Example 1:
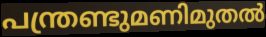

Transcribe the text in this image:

പന്ത്രണ്ടുമണിമുതൽ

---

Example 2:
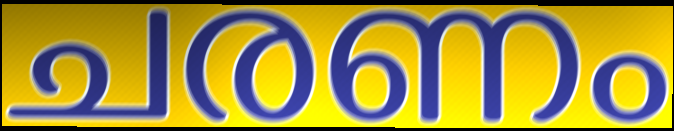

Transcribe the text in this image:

ചരണം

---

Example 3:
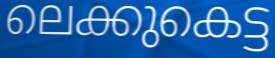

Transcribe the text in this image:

ലെക്കുകെട്ട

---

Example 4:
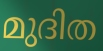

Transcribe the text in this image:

മുദിത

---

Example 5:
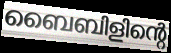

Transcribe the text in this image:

ബൈബിളിന്റെ